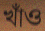
খাঁও